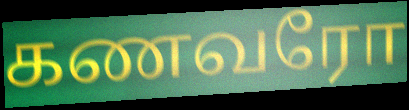
கணவரோ